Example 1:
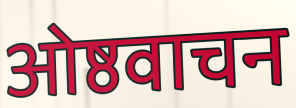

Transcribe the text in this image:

ओष्ठवाचन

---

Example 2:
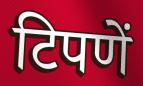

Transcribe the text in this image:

टिपणें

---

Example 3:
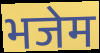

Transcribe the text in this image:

भजेम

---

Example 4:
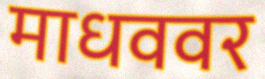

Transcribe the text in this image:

माधववर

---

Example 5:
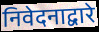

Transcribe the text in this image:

निवेदनाद्वारे